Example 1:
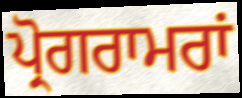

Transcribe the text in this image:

ਪ੍ਰੋਗਰਾਮਰਾਂ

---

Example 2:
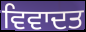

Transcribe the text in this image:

ਵਿਵਾਦਤ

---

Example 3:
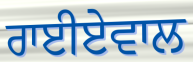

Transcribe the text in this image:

ਰਾਈਏਵਾਲ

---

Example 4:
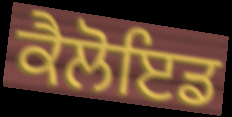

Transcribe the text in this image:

ਕੈਲੋਇਡ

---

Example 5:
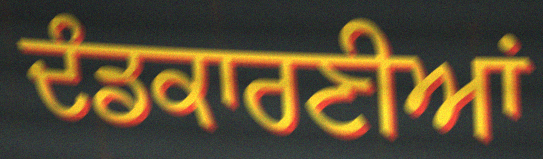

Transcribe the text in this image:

ਦੰਡਕਾਰਣੀਆਂ